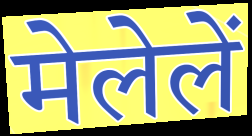
मेलेलें